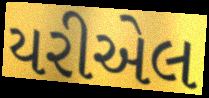
યરીએલ